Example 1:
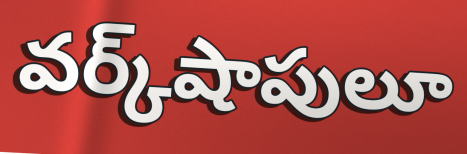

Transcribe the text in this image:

వర్క్‌షాపులూ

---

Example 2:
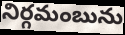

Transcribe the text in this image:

నిర్గమంబును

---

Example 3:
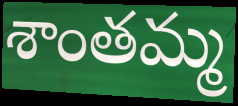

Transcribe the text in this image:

శాంతమ్మ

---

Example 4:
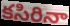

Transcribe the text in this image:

కసిరినా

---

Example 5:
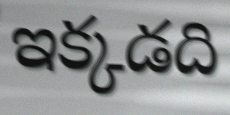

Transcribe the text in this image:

ఇక్కడది